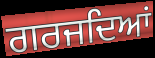
ਗਰਜਦਿਆਂ